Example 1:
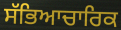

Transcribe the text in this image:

ਸੱਭਿਆਚਾਰਿਕ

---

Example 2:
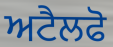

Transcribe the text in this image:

ਅਟੈਲਫੋ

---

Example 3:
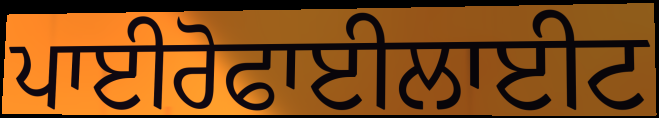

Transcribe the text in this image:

ਪਾਈਰੋਫਾਈਲਾਈਟ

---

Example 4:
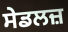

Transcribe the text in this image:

ਸੇਡਲਜ਼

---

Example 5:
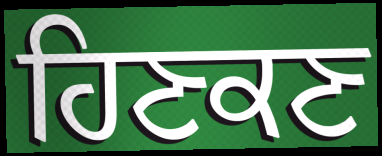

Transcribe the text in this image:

ਹਿਣਕਣ